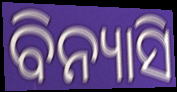
ବିନ୍ୟାସି